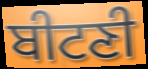
ਬੀਟਣੀ